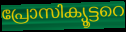
പ്രോസിക്യൂട്ടറെ